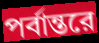
পর্বান্তরে